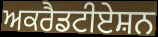
ਅਕਰੈਡਟੀਏਸ਼ਨ